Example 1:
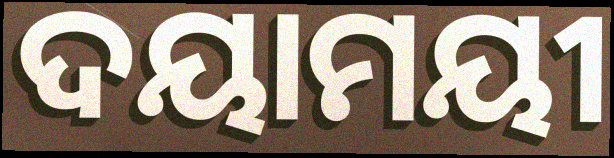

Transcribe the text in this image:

ଦୟାମୟୀ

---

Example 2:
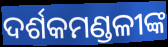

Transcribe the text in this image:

ଦର୍ଶକମଣ୍ଡଳୀଙ୍କ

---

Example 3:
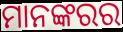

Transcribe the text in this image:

ମାନଙ୍କରର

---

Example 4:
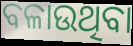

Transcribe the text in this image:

ବଳାଉଥିବା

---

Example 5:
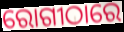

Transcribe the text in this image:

ରୋଗୀଠାରେ